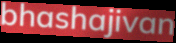
bhashajivan